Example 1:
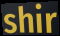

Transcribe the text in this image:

shir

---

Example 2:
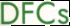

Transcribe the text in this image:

DFCs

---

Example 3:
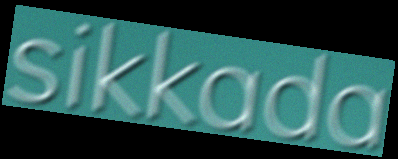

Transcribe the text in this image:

sikkada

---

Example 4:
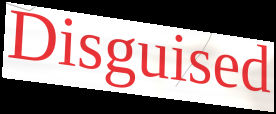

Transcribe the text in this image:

Disguised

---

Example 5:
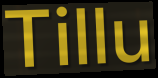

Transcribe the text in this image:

Tillu